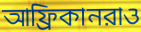
আফ্রিকানরাও